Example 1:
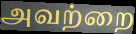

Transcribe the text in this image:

அவற்றை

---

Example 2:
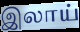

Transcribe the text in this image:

இலாய்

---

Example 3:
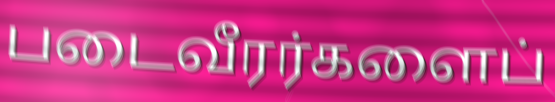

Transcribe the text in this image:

படைவீரர்களைப்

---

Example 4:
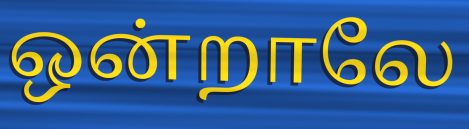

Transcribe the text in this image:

ஒன்றாலே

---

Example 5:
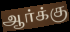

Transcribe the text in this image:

ஆர்க்கு